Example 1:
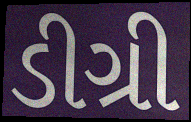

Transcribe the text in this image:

ડીગ્રી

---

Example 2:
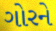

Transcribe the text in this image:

ગોરને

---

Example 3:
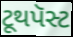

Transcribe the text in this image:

ટૂથપૅસ્ટ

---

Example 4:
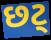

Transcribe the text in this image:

છટ્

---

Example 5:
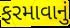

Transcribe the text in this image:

ફરમાવાનું